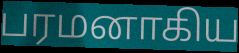
பரமனாகிய